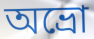
অভ্রো